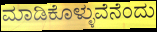
ಮಾಡಿಕೊಳ್ಳುವೆನೆಂದು